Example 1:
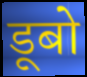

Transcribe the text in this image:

डूबो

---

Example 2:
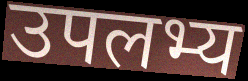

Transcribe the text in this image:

उपलभ्य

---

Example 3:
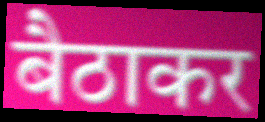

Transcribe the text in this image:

बैठाकर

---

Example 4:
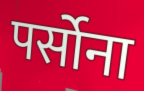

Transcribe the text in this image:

पर्सोना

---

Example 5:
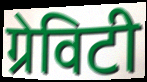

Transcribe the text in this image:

ग्रेविटी